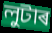
লুটাৰ